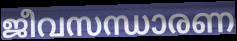
ജീവസന്ധാരണ